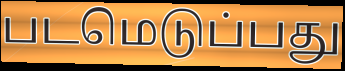
படமெடுப்பது